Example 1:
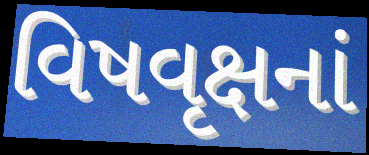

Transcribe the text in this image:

વિષવૃક્ષનાં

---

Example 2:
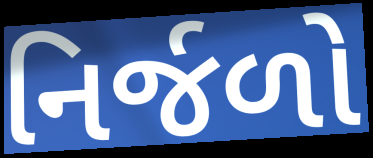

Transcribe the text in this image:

નિર્જળો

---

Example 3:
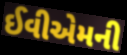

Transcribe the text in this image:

ઈવીએમની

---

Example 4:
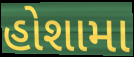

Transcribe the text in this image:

હોશામા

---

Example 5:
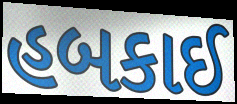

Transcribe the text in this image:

હબકાઈ